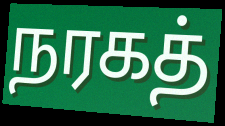
நரகத்